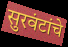
सुरवंटांचे